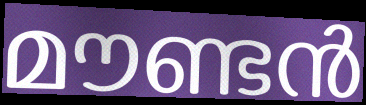
മൗണ്ടൻ